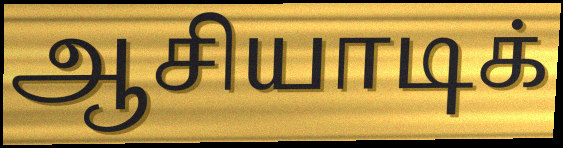
ஆசியாடிக்